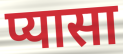
प्यासा